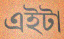
এইটা